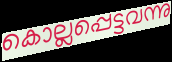
കൊല്ലപ്പെട്ടവന്നു